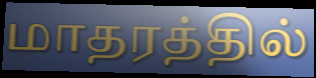
மாதரத்தில்